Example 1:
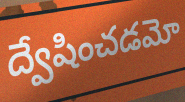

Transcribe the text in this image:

ద్వేషించడమో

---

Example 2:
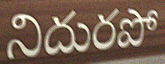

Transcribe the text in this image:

నిదురపో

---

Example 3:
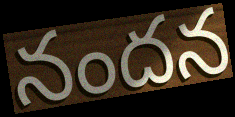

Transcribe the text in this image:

నందన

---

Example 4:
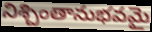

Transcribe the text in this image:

నిశ్చింతానుభవమై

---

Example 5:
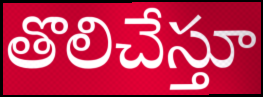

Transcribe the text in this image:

తొలిచేస్తూ